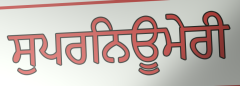
ਸੁਪਰਨਿਊਮੇਰੀ